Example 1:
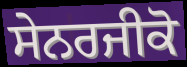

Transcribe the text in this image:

ਸੇਨਰਜੀਕੋ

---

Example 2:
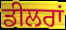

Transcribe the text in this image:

ਡੀਲਰਾਂ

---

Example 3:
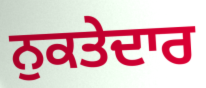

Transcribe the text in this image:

ਨੁਕਤੇਦਾਰ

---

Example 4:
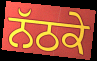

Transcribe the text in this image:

ਨੱਠਕੇ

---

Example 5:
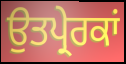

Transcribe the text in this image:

ਉਤਪ੍ਰੇਰਕਾਂ